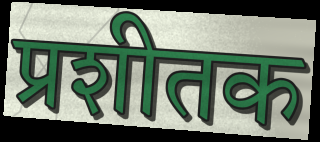
प्रशीतक